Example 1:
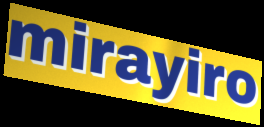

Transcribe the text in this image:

mirayiro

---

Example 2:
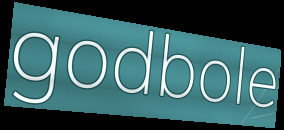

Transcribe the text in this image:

godbole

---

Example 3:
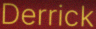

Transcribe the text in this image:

Derrick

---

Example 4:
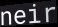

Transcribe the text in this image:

neir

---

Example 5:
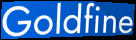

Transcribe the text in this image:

Goldfine